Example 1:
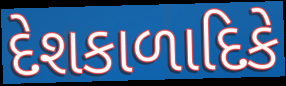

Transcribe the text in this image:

દેશકાળાદિકે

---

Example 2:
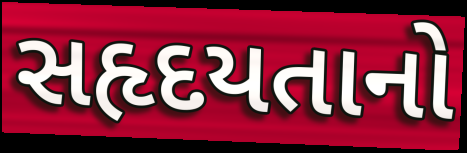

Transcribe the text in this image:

સહૃદયતાનો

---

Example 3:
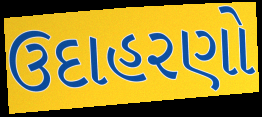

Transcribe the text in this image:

ઉદાહરણો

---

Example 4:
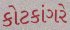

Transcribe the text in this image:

કોટકાંગરે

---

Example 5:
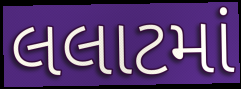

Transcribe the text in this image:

લલાટમાં